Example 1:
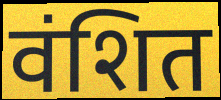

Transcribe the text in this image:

वंशित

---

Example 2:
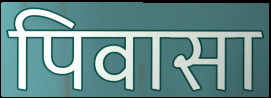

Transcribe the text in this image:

पिवासा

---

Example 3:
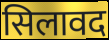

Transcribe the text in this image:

सिलावद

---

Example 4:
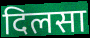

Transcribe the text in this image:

दिलसा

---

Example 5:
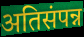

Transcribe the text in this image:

अतिसंपन्न